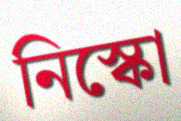
নিস্কো